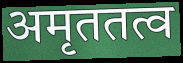
अमृततत्व